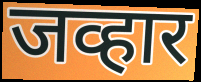
जव्हार